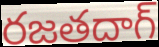
రజతదాగ్